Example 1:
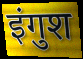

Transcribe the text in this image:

इंगुश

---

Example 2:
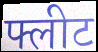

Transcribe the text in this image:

फ्लीट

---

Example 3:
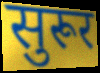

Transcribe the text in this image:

सुरूर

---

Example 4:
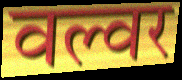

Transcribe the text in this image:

वल्वर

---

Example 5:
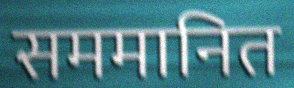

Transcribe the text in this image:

सममानित